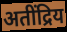
अतींद्रिय